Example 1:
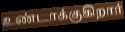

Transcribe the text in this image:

உண்டாக்குகிறார்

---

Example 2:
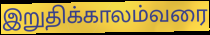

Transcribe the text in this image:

இறுதிக்காலம்வரை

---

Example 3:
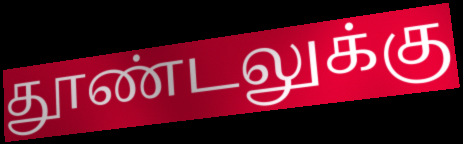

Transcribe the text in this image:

தூண்டலுக்கு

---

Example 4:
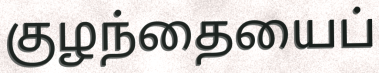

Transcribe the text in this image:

குழந்தையைப்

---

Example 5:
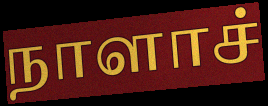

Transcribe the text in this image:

நாளாச்